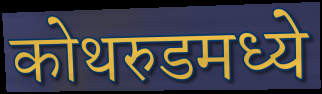
कोथरुडमध्ये